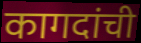
कागदांची